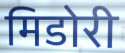
मिडोरी